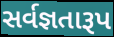
સર્વજ્ઞતારૂપ